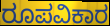
ರೂಪವಿಕಾರ